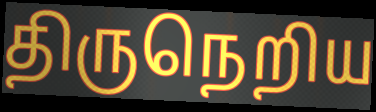
திருநெறிய